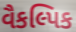
વૈકલ્પિક